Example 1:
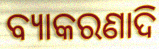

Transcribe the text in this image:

ବ୍ୟାକରଣାଦି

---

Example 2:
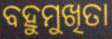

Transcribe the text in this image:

ବହୁମୁଖିତା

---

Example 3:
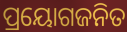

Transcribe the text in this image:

ପ୍ରୟୋଗଜନିତ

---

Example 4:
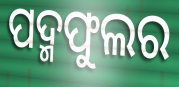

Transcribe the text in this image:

ପଦ୍ମଫୁଲର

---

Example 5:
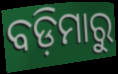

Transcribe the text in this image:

ବଡ଼ିମାରୁ